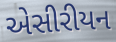
એસીરીયન